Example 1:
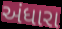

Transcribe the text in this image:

અંધારા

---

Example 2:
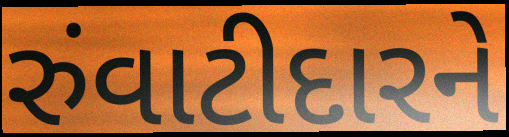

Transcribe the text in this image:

રુંવાટીદારને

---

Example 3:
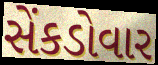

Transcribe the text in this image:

સેંકડોવાર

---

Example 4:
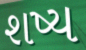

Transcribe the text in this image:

શષ્ય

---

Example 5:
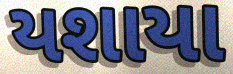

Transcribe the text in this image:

યશાયા